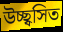
উচ্ছ্বসিত